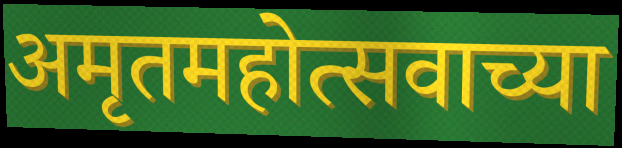
अमृतमहोत्सवाच्या